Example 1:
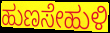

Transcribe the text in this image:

ಹುಣಸೇಹುಳಿ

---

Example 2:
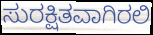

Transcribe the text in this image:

ಸುರಕ್ಷಿತವಾಗಿರಲಿ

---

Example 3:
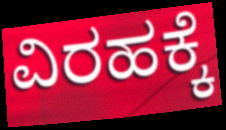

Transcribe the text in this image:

ವಿರಹಕ್ಕೆ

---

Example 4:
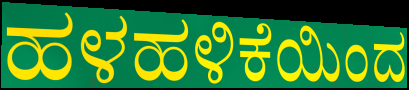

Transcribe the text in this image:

ಹಳಹಳಿಕೆಯಿಂದ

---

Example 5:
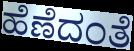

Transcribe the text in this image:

ಹೆಣೆದಂತೆ